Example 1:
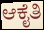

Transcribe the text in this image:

ಆಕೈತಿ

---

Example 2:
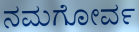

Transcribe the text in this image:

ನಮಗೋರ್ವ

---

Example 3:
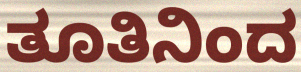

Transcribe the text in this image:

ತೂತಿನಿಂದ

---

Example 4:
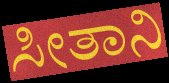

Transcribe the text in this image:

ಸೀತಾನಿ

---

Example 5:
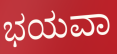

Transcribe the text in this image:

ಭಯವಾ